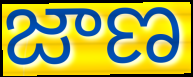
జాణ